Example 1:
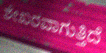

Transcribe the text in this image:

ಶೇಖರವಾಗುತ್ತಿದೆ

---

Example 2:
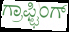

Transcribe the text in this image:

ಗ್ರಾಫ್ಟಿಂಗ್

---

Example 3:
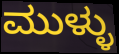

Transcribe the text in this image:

ಮುಳ್ಳು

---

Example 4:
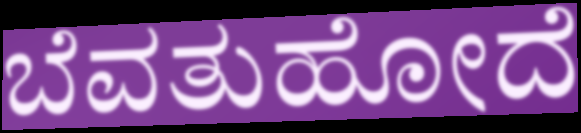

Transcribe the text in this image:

ಬೆವತುಹೋದೆ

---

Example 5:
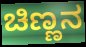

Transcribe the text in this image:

ಚಿಣ್ಣನ